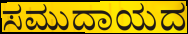
ಸಮುದಾಯದ